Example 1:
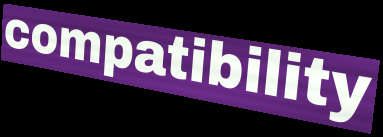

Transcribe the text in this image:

compatibility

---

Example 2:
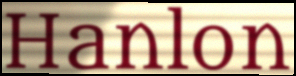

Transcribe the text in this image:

Hanlon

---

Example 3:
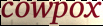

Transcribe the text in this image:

cowpox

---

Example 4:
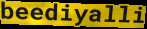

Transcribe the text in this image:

beediyalli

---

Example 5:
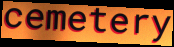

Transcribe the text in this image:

cemetery